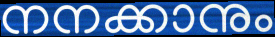
നനക്കാനും